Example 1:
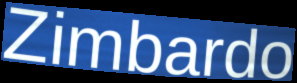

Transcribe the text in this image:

Zimbardo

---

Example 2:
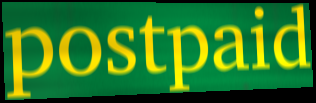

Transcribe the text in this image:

postpaid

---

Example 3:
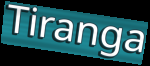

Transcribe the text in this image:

Tiranga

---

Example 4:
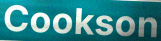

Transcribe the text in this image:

Cookson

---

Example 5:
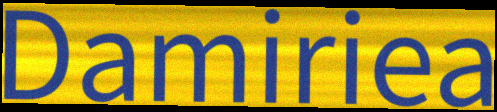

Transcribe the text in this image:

Damiriea